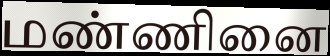
மண்ணினை